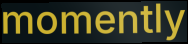
momently